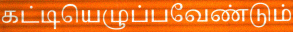
கட்டியெழுப்பவேண்டும்